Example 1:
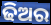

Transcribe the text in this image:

ଢିଅର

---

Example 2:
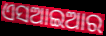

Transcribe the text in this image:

ଏସଆଇଆର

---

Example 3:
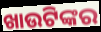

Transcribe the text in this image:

ଖାଉଟିଙ୍କର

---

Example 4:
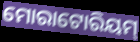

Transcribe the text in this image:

ମୋରାଟୋରିୟମ୍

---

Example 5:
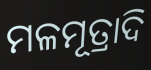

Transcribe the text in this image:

ମଳମୂତ୍ରାଦି